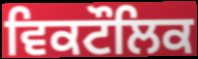
ਵਿਕਟੌਲਿਕ